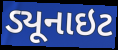
ડ્યૂનાઇટ